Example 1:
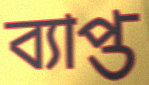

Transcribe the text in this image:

ব্যাপ্ত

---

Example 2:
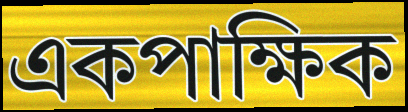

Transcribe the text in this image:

একপাক্ষিক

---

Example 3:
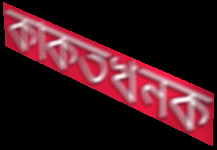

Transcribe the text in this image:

কাকতখনক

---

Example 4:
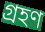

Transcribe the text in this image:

গ্ৰহণ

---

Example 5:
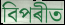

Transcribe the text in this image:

বিপৰীত